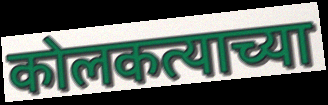
कोलकत्याच्या